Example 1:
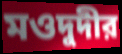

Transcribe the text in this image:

মওদুদীর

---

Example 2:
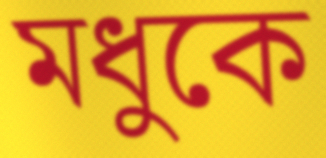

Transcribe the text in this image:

মধুকে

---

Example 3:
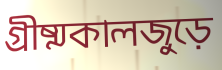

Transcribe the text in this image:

গ্রীষ্মকালজুড়ে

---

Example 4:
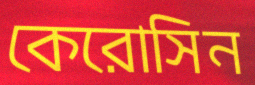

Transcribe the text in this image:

কেরোসিন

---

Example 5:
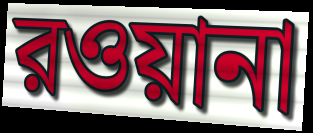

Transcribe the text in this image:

রওয়ানা